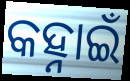
କହ୍ନାଇଁ